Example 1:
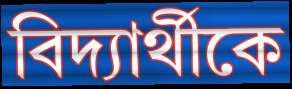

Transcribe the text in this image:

বিদ্যার্থীকে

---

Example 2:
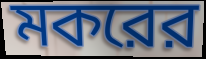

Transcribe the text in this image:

মকরের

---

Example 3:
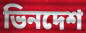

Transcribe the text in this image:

ভিনদেশ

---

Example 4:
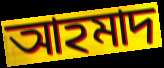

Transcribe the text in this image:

আহমাদ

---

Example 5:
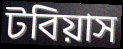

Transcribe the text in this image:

টবিয়াস